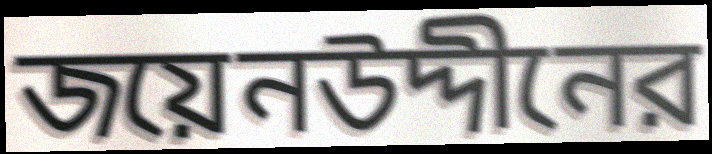
জয়েনউদ্দীনের